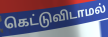
கெட்டுவிடாமல்